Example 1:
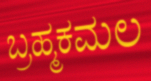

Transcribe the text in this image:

ಬ್ರಹ್ಮಕಮಲ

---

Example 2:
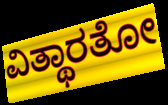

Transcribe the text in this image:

ವಿತ್ಥಾರತೋ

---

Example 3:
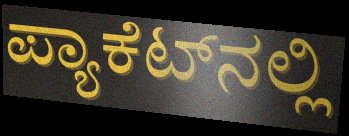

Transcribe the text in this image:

ಪ್ಯಾಕೆಟ್‌ನಲ್ಲಿ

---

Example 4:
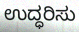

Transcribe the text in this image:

ಉದ್ಧರಿಸು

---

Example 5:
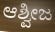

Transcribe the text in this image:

ಆಶ್ವೀಜ